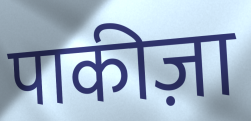
पाकीज़ा